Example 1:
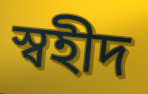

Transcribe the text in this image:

স্বহীদ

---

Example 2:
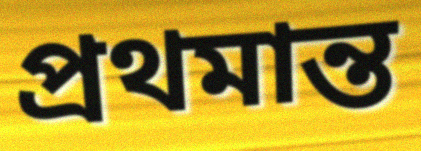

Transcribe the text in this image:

প্ৰথমান্ত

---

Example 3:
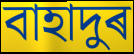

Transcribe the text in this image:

বাহাদুৰ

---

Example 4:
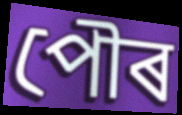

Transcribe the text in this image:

পৌৰ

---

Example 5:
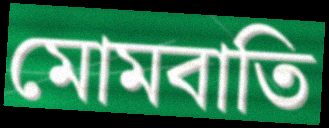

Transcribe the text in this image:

মোমবাতি